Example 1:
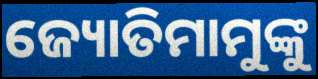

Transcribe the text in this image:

ଜ୍ୟୋତିମାମୁଙ୍କୁ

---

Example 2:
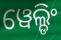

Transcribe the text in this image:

ୱେଲ୍ଡିଂ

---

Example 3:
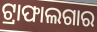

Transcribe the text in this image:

ଟ୍ରାଫାଲଗାର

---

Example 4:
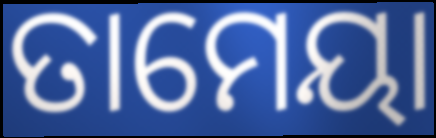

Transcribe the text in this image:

ତାମେୟା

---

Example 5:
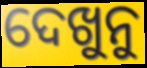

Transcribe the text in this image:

ଦେଖୁନୁ